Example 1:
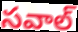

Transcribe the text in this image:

సవాల్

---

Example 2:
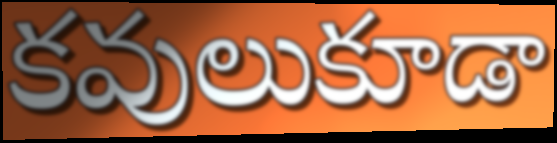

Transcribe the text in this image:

కవులుకూడా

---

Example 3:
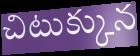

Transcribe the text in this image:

చిటుక్కున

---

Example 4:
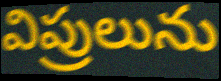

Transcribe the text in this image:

విప్రులును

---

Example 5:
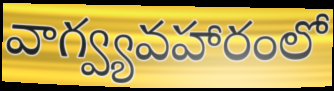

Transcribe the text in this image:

వాగ్వ్యవహారంలో